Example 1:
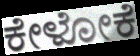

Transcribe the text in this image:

ಕೇಳೋಕೆ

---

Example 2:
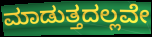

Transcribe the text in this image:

ಮಾಡುತ್ತದಲ್ಲವೇ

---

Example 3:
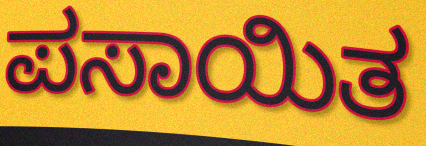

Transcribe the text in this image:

ಪಸಾಯಿತ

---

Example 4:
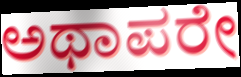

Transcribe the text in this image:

ಅಥಾಪರೇ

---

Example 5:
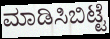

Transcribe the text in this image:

ಮಾಡಿಸಿಬಿಟ್ಟೆ